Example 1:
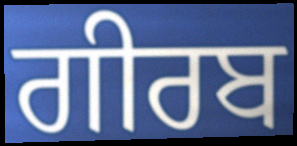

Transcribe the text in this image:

ਗੀਰਬ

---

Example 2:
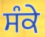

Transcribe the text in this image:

ਸੰਕੇ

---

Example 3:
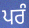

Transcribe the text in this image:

ਪਰੰ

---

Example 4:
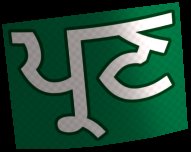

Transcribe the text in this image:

ਪ੍ਰਣ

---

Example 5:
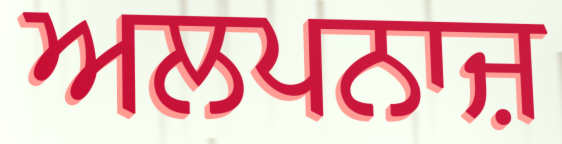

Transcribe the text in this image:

ਅਲਪਨਾਜ਼